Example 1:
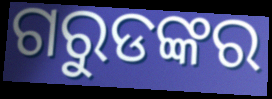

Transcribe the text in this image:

ଗରୁଡଙ୍କର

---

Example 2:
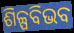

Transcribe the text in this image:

ଶିଳ୍ପବିଭବ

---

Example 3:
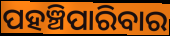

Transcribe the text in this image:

ପହଞ୍ଚିପାରିବାର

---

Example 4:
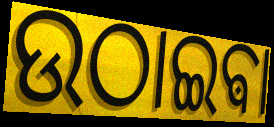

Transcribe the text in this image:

ଉଠାଇଵା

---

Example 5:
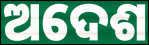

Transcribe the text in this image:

ଅଦେଶ